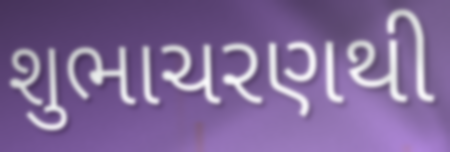
શુભાચરણથી